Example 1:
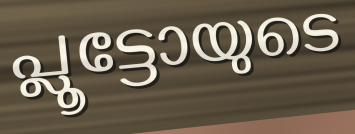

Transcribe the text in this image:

പ്ലൂട്ടോയുടെ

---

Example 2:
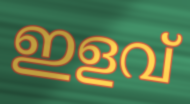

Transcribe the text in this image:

ഇളവ്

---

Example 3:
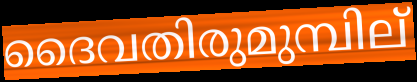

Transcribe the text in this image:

ദൈവതിരുമുമ്പില്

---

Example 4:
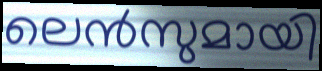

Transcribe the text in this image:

ലെൻസുമായി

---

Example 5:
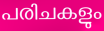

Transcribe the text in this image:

പരിചകളും